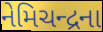
નેમિચન્દ્રના